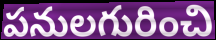
పనులగురించి